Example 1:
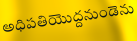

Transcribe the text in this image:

అధిపతియొద్దనుండెను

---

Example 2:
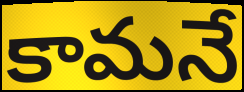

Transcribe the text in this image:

కామనే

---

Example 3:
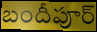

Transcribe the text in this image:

బందీపూర్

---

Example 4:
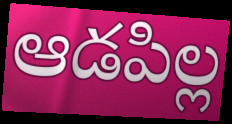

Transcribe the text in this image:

ఆడపిల్ల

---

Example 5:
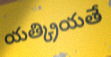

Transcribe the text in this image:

యత్క్రియతే